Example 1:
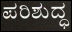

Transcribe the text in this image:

ಪರಿಶುದ್ಧ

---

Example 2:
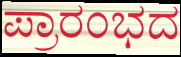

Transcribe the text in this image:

ಪ್ರಾರಂಭದ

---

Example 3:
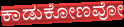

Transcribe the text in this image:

ಕಾಡುಕೋಣವೋ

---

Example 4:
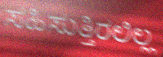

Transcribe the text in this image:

ಸಹಿಸುತ್ತಿರಲಿಲ್ಲ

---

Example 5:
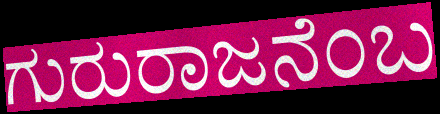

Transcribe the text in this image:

ಗುರುರಾಜನೆಂಬ